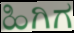
ಹಿಗಿಗ